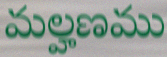
మల్హణము